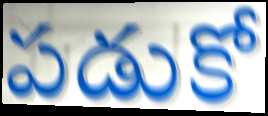
పడుకో